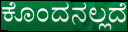
ಕೊಂದನಲ್ಲದೆ